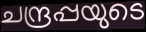
ചന്ദ്രപ്പയുടെ